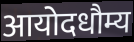
आयोदधौम्य